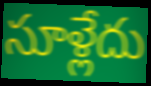
సూళ్లేదు